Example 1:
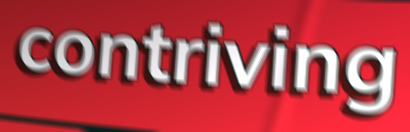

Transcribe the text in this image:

contriving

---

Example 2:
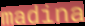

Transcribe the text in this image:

madina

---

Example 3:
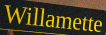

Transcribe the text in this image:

Willamette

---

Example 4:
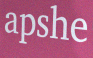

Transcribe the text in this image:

apshe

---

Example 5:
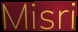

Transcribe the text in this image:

Misri